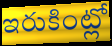
ఇరుకింట్లో